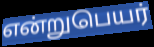
என்றுபெயர்